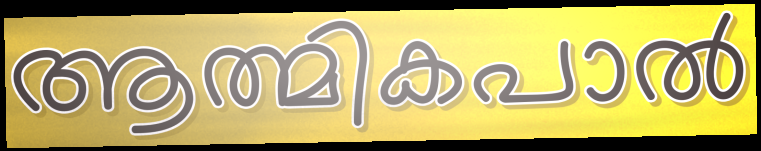
ആത്മികപാൽ